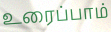
உரைப்பாம்